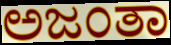
ಅಜಂತಾ